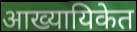
आख्यायिकेत